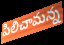
పిలిచామన్న